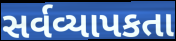
સર્વવ્યાપકતા